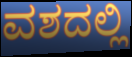
ವಶದಲ್ಲಿ